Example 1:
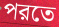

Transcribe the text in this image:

পরতে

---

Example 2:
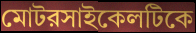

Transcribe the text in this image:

মোটরসাইকেলটিকে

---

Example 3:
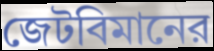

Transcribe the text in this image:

জেটবিমানের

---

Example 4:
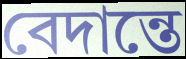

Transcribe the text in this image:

বেদান্তে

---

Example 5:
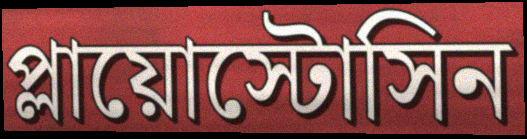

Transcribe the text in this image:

প্লায়োস্টোসিন